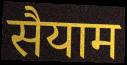
सैयाम